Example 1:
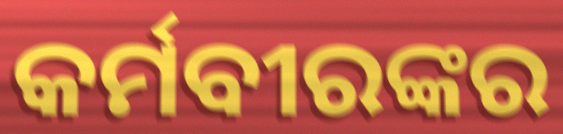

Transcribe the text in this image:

କର୍ମବୀରଙ୍କର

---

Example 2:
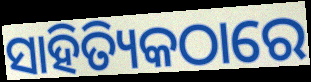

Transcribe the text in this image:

ସାହିତ୍ୟିକଠାରେ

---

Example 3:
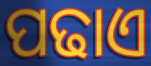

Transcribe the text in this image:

ପଢାଏ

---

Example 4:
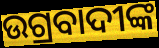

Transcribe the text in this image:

ଉଗ୍ରବାଦୀଙ୍କ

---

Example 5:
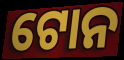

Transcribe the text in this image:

ଟୋନ